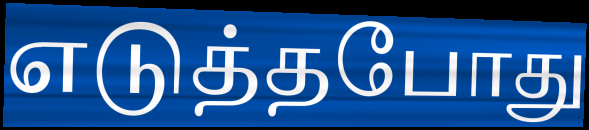
எடுத்தபோது